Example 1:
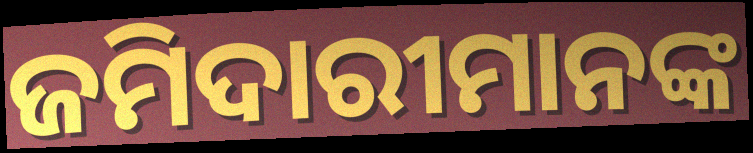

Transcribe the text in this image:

ଜମିଦାରୀମାନଙ୍କ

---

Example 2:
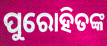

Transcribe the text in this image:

ପୁରୋହିତଙ୍କ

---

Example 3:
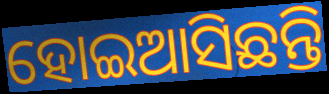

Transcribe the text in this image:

ହୋଇଆସିଛନ୍ତି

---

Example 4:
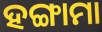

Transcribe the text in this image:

ହଙ୍ଗାମା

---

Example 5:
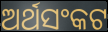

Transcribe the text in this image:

ଅର୍ଥସଂକଟ